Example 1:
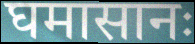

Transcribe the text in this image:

घमासानः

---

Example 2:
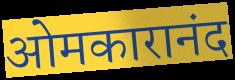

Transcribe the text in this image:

ओमकारानंद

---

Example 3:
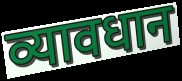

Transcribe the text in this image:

व्यावधान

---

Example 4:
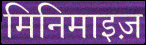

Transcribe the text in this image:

मिनिमाइज़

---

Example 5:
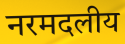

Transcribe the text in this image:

नरमदलीय